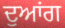
ਦੁਆਂਗ